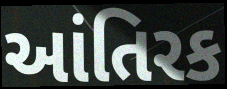
આંતિરક